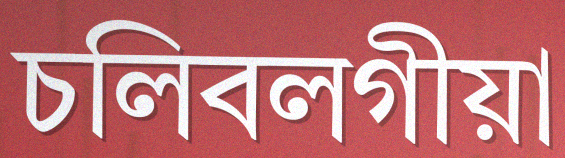
চলিবলগীয়া